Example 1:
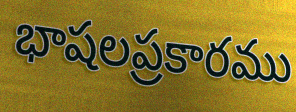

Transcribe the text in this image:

భాషలప్రకారము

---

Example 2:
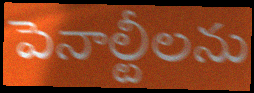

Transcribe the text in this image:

పెనాల్టీలను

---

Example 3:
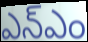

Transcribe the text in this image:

ఎన్ఎం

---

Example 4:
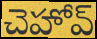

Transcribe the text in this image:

చెహోవ్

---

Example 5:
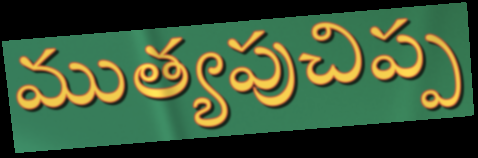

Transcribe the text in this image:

ముత్యపుచిప్ప